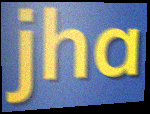
jha